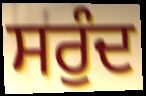
ਸਰੁੰਦ